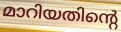
മാറിയതിന്റെ